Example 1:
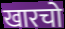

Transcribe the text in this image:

खारचो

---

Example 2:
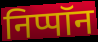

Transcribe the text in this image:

निप्पॉन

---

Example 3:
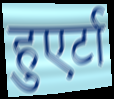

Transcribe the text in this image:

हुएर्टा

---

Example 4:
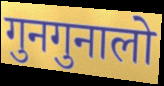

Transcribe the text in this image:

गुनगुनालो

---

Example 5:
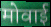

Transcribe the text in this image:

मोवाई